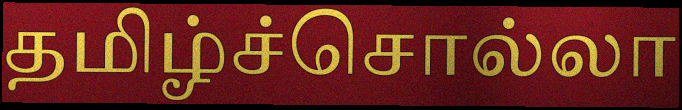
தமிழ்ச்சொல்லா